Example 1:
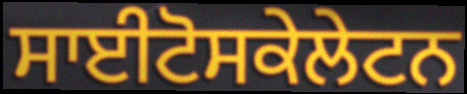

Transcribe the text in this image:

ਸਾਈਟੋਸਕੇਲੇਟਨ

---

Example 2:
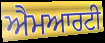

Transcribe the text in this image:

ਐਮਆਰਟੀ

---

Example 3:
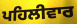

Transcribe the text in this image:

ਪਹਿਲੀਵਾਰ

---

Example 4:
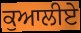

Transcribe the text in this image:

ਕੁਆਲੀਏ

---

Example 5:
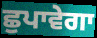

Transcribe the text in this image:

ਛੁਪਾਵੇਗਾ